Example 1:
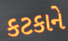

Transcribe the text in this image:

કટકાને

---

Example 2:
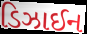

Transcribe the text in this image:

ડિઝાઈન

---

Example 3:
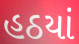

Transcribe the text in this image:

હઠયાં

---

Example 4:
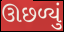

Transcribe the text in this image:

ઊછળ્યું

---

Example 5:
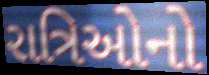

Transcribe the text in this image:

રાત્રિઓનો